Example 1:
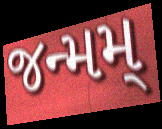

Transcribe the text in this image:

જન્મમ્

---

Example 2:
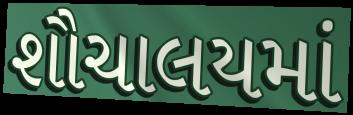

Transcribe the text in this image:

શૌચાલયમાં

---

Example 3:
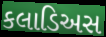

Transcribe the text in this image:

કલાડિઅસ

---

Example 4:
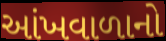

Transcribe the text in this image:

આંખવાળાનો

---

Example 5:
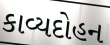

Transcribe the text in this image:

કાવ્યદોહન